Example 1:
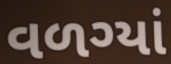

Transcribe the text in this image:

વળગ્યાં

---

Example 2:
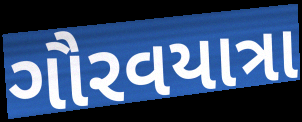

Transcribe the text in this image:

ગૌરવયાત્રા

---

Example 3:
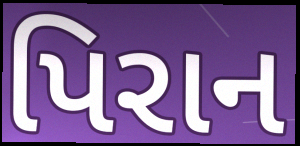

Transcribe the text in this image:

પિરાન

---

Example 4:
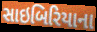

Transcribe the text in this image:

સાઇબિરિયાના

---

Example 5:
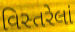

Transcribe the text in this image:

વિસ્તરેલાં